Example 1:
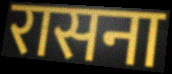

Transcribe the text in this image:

रासना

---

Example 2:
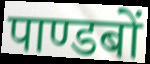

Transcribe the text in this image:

पाण्डबों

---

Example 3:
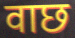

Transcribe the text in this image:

वाछ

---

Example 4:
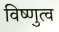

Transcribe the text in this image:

विष्णुत्व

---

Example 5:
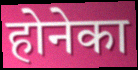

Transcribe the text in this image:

होनेका